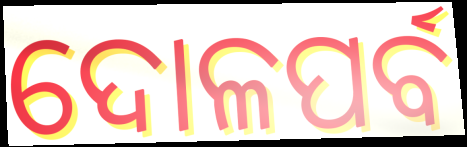
ଦୋଳପର୍ବ